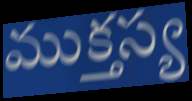
ముక్తస్య